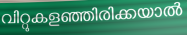
വിറ്റുകളഞ്ഞിരിക്കയാൽ